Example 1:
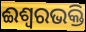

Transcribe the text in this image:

ଈଶ୍ୱରଭକ୍ତି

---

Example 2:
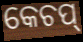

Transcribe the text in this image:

କେଚପ୍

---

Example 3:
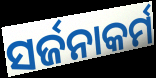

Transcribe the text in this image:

ସର୍ଜନାକର୍ମ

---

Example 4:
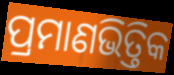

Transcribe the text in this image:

ପ୍ରମାଣଭିତ୍ତିକ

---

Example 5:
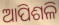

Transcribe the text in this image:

ଆପିଶଳି